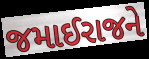
જમાઈરાજને